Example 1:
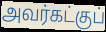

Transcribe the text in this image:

அவர்கட்குப்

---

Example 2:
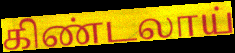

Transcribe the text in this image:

கிண்டலாய்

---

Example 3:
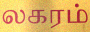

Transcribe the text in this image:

லகரம்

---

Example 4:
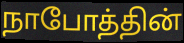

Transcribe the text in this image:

நாபோத்தின்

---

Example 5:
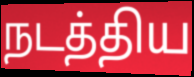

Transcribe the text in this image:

நடத்திய